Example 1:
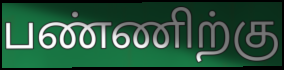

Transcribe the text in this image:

பண்ணிற்கு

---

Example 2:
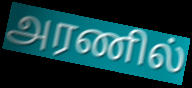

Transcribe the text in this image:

அரணில்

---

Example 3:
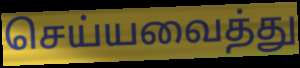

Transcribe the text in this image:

செய்யவைத்து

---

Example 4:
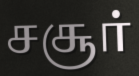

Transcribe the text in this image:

சசூர்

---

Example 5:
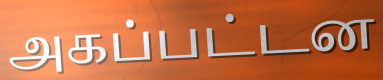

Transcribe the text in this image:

அகப்பட்டன